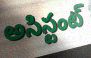
అసిస్టంట్